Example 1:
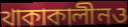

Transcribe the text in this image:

থাকাকালীনও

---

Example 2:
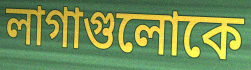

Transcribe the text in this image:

লাগাগুলোকে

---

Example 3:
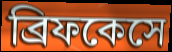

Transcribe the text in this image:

ব্রিফকেসে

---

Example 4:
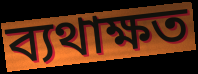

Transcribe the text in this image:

ব্যথাক্ষত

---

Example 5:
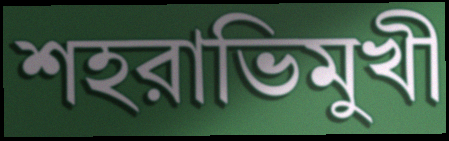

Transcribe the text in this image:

শহরাভিমুখী